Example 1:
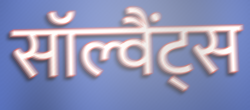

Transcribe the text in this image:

सॉल्वैंट्स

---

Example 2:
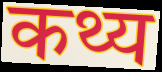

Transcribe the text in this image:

कथ्य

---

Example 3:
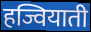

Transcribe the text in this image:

हज्वियाती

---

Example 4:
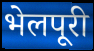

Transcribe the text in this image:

भेलपूरी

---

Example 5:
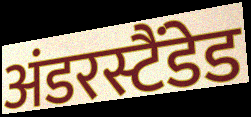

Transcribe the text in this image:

अंडरस्टैंडेड